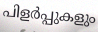
പിളർപ്പുകളും